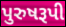
પુરુષરૂપી